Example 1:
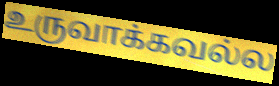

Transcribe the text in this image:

உருவாக்கவல்ல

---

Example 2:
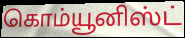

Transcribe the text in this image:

கொம்யூனிஸ்ட்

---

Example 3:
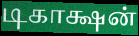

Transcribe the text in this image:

டிகாக்ஷன்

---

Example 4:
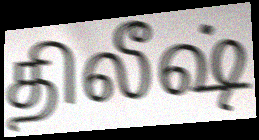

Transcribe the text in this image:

திலீஷ்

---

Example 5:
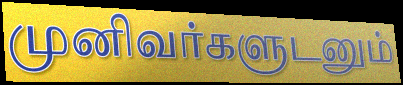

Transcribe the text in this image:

முனிவர்களுடனும்